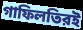
গাফিলতিরই